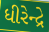
ધીરેન્દ્રે